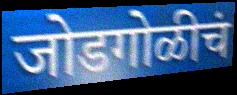
जोडगोळीचं